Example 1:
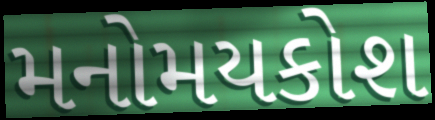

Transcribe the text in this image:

મનોમયકોશ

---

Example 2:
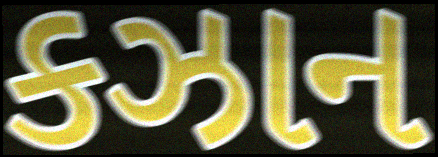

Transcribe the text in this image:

કઝાન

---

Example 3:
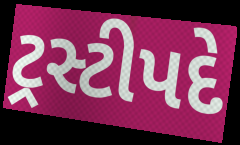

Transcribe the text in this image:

ટ્રસ્ટીપદે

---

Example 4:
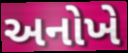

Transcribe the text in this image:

અનોખે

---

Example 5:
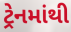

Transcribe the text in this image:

ટ્રેનમાંથી